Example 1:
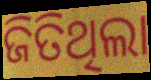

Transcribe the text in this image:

ଜିତିଥିଲା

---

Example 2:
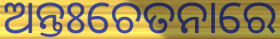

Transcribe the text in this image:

ଅନ୍ତଃଚେତନାରେ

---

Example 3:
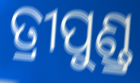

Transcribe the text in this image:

ତ୍ରୀପୁଣ୍ଡ୍ର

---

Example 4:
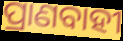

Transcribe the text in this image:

ପ୍ରାଣବାହୀ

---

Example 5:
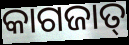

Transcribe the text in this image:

କାଗଜାତ୍